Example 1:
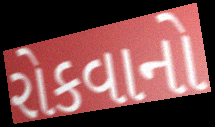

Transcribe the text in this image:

રોકવાનો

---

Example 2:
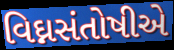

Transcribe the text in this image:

વિઘ્નસંતોષીએ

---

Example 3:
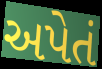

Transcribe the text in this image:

અપેતં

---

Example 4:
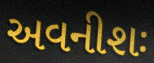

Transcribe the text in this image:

અવનીશઃ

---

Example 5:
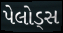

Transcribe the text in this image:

પેલોડ્સ